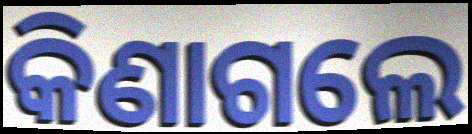
କିଣାଗଲେ